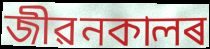
জীৱনকালৰ